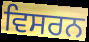
ਵਿਸਰਨ